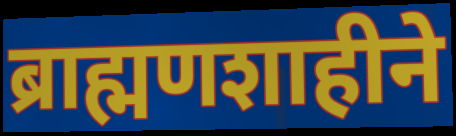
ब्राह्मणशाहीने